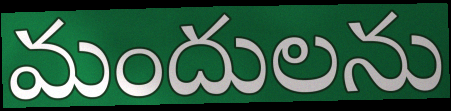
మందులను